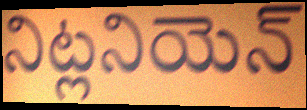
నిట్లనియెన్